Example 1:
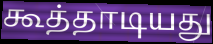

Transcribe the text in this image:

கூத்தாடியது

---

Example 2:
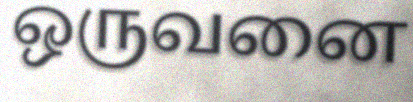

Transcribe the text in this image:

ஒருவனை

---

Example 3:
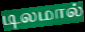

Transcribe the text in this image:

டிலமால்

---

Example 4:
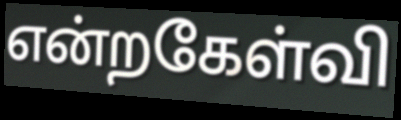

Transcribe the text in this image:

என்றகேள்வி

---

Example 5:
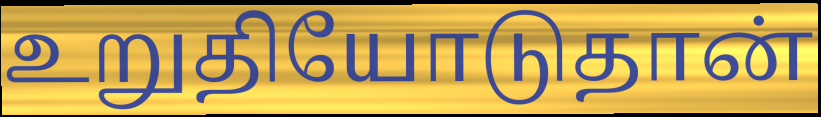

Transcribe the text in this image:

உறுதியோடுதான்